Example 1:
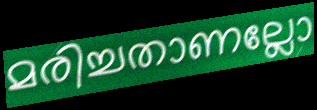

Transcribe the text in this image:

മരിച്ചതാണല്ലോ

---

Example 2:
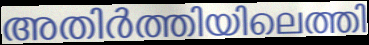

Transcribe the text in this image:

അതിർത്തിയിലെത്തി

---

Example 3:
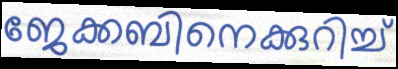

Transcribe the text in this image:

ജേക്കബിനെക്കുറിച്ച്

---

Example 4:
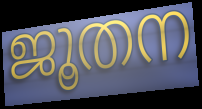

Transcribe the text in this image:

ജൂതന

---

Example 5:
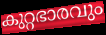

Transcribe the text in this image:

കുറ്റഭാരവും